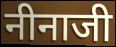
नीनाजी